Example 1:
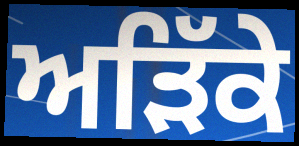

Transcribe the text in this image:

ਅੜਿੱਕੇ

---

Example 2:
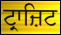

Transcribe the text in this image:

ਟ੍ਰਾਜ਼ਿਟ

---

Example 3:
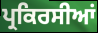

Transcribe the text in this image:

ਪ੍ਰਕਿਰਸੀਆਂ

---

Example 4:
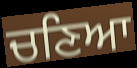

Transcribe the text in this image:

ਚਣਿਆ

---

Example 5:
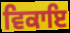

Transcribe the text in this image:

ਵਿਕਾਇ